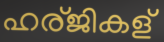
ഹര്ജികള്